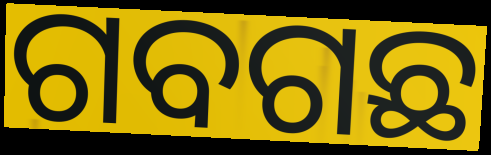
ଗବଗଛ